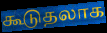
கூடுதலாக